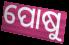
ପୋଷୁ